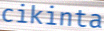
cikinta